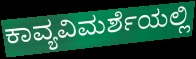
ಕಾವ್ಯವಿಮರ್ಶೆಯಲ್ಲಿ